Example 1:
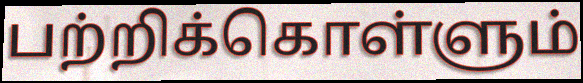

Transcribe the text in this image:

பற்றிக்கொள்ளும்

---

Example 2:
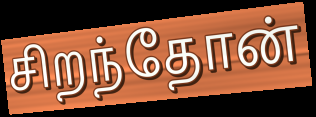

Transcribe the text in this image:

சிறந்தோன்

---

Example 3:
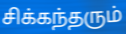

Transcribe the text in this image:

சிக்கந்தரும்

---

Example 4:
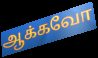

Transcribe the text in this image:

ஆக்கவோ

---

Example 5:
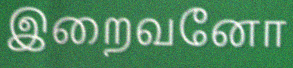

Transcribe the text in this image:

இறைவனோ